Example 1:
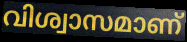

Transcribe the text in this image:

വിശ്വാസമാണ്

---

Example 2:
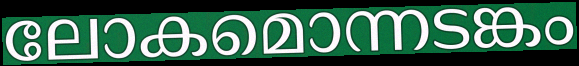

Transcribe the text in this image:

ലോകമൊന്നടങ്കം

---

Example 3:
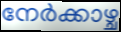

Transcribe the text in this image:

നേർക്കാഴ്ച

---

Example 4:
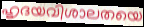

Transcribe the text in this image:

ഹൃദയവിശാലതയെ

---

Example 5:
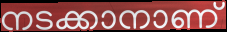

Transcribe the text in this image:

നടക്കാനാണ്